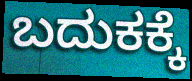
ಬದುಕಕ್ಕೆ